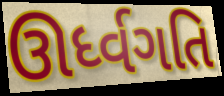
ઊર્ધ્વગતિ